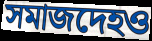
সমাজদেহও